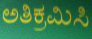
ಅತಿಕ್ರಮಿಸಿ